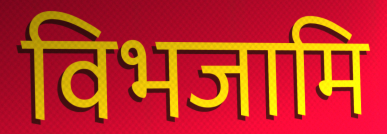
विभजामि